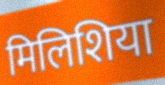
मिलिशिया